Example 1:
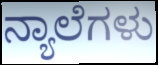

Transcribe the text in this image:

ನ್ಯಾಲೆಗಳು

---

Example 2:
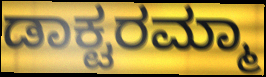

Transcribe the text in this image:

ಡಾಕ್ಟರಮ್ಮಾ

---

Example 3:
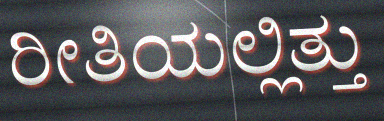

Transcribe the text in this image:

ರೀತಿಯಲ್ಲಿತ್ತು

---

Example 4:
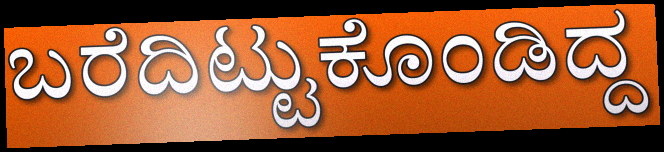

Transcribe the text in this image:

ಬರೆದಿಟ್ಟುಕೊಂಡಿದ್ದ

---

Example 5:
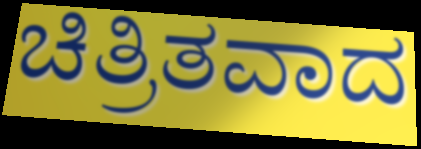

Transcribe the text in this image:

ಚಿತ್ರಿತವಾದ